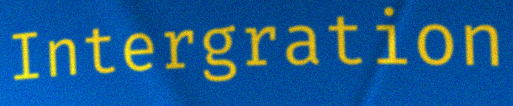
Intergration